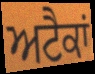
ਅਟੈਕਾਂ